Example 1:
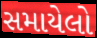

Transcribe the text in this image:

સમાયેલો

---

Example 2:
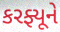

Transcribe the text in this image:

કરફ્યૂને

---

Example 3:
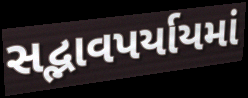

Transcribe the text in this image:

સદ્ભાવપર્યાયમાં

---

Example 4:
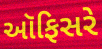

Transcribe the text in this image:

ઑફિસરે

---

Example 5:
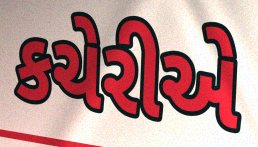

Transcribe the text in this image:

કચેરીએ